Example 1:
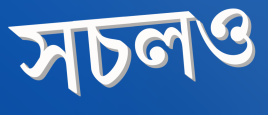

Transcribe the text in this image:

সচলও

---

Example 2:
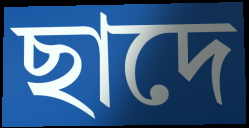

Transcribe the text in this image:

ছাদে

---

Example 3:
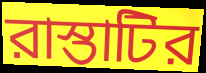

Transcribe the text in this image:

রাস্তাটির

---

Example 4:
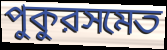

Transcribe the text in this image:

পুকুরসমেত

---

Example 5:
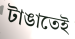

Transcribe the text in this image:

টাঙাতেই